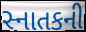
સ્નાતકની